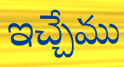
ఇచ్చేము